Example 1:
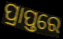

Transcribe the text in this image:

ପ୍ରାପ୍ତରେ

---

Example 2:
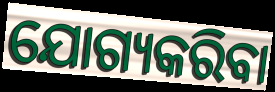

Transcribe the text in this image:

ଯୋଗ୍ୟକରିବା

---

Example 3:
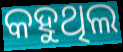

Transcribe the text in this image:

କହୁଥିଲ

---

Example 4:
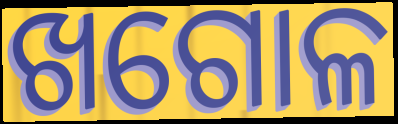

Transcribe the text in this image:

ଖଗୋଳ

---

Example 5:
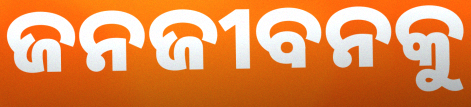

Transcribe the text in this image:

ଜନଜୀବନକୁ